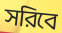
সরিবে